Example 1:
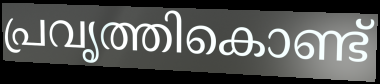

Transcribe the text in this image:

പ്രവൃത്തികൊണ്ട്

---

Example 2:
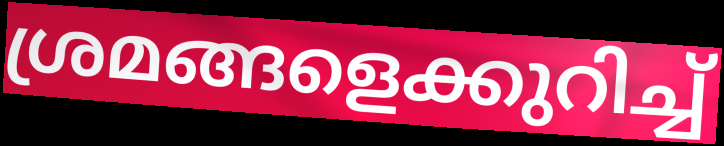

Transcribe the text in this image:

ശ്രമങ്ങളെക്കുറിച്ച്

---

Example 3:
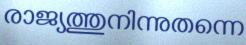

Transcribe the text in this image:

രാജ്യത്തുനിന്നുതന്നെ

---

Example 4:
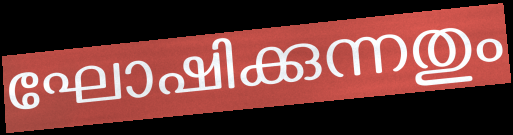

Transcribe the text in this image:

ഘോഷിക്കുന്നതും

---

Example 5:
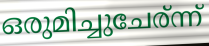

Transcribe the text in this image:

ഒരുമിച്ചുചേര്ന്ന്